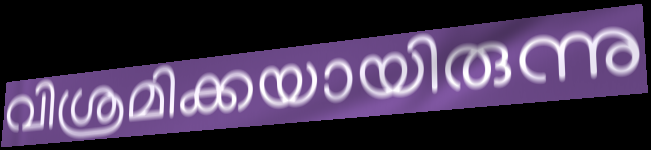
വിശ്രമിക്കയായിരുന്നു